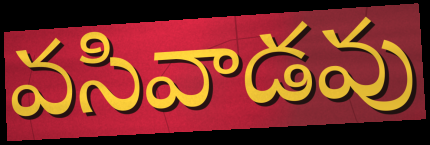
వసివాడవు